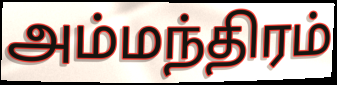
அம்மந்திரம்